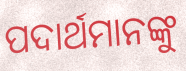
ପଦାର୍ଥମାନଙ୍କୁ